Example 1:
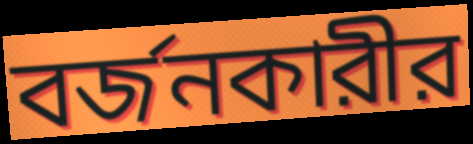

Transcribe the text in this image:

বর্জনকারীর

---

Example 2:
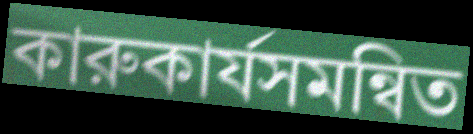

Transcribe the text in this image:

কারুকার্যসমন্বিত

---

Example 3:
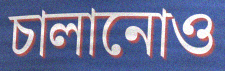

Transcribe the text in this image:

চালানোও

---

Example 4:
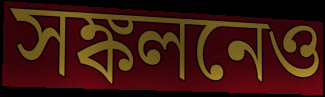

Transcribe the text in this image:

সঙ্কলনেও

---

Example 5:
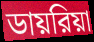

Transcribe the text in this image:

ডায়রিয়া